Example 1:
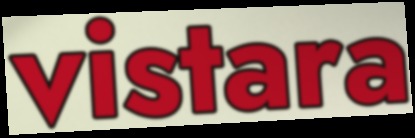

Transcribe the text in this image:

vistara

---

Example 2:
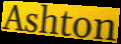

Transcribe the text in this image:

Ashton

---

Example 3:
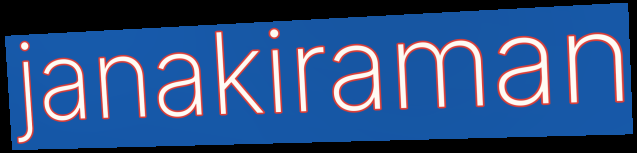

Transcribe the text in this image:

janakiraman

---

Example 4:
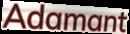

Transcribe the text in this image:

Adamant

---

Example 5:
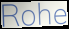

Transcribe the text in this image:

Rohe